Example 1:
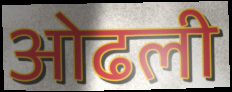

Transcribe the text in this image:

ओढली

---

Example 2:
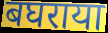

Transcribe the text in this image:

बघराया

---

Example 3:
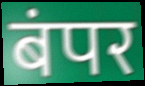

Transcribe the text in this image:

बंपर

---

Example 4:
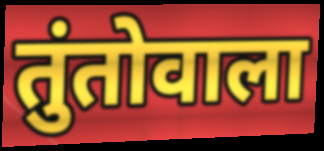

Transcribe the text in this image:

तुंतोवाला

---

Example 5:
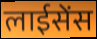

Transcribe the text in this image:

लाईसेंस